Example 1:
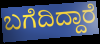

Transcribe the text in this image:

ಬಗೆದಿದ್ದಾರೆ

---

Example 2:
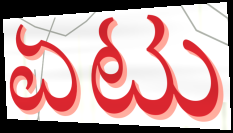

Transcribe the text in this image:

ಏಟು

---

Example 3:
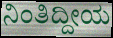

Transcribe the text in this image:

ನಿಂತಿದ್ದೀಯ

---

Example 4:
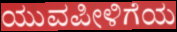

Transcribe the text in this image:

ಯುವಪೀಳಿಗೆಯ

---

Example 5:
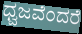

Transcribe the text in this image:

ಧ್ವಜವೆಂದರೆ